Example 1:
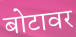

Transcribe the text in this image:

बोटावर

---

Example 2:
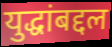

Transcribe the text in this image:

युद्धांबद्दल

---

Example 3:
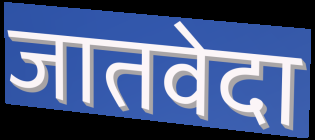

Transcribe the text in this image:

जातवेदा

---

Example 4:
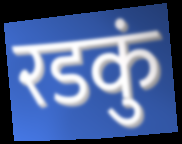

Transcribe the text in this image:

रडकुं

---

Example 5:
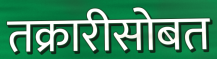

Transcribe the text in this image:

तक्रारीसोबत